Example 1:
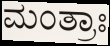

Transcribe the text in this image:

ಮಂತ್ರಾಃ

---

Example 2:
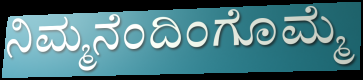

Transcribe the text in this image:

ನಿಮ್ಮನೆಂದಿಂಗೊಮ್ಮೆ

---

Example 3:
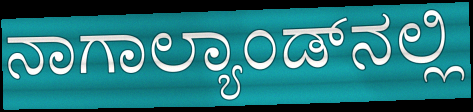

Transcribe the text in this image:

ನಾಗಾಲ್ಯಾಂಡ್‌ನಲ್ಲಿ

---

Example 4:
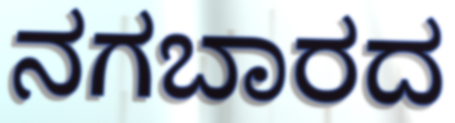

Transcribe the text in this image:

ನಗಬಾರದ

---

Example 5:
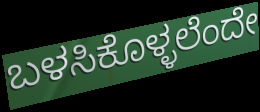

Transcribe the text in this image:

ಬಳಸಿಕೊಳ್ಳಲೆಂದೇ